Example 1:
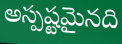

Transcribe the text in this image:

అస్పష్టమైనది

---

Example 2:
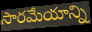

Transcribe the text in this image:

సారమేయాన్ని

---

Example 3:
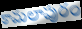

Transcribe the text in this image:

కామలాపురం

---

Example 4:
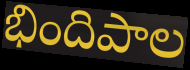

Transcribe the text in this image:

భిందిపాల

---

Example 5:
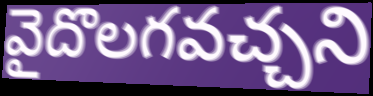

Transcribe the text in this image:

వైదొలగవచ్చని